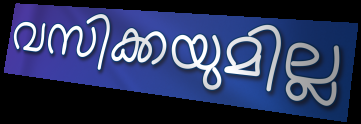
വസിക്കയുമില്ല